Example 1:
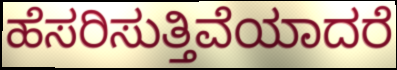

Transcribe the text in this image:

ಹೆಸರಿಸುತ್ತಿವೆಯಾದರೆ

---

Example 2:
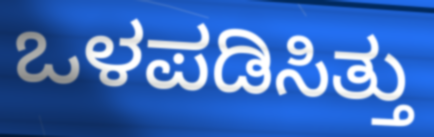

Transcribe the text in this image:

ಒಳಪಡಿಸಿತ್ತು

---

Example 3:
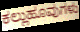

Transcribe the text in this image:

ಕಲ್ಲುಹೂವುಗಳು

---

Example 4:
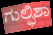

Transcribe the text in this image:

ಗುಲ್ಫಿಶಾ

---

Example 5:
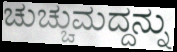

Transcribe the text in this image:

ಚುಚ್ಚುಮದ್ದನ್ನು